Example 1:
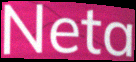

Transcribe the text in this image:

Neta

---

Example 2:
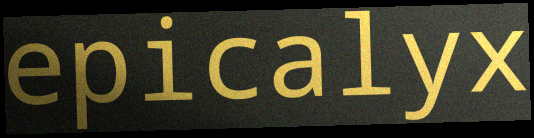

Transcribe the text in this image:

epicalyx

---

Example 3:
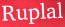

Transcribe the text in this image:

Ruplal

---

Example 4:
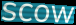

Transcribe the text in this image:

scow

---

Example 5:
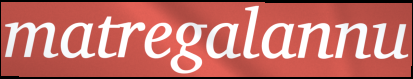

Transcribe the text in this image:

matregalannu